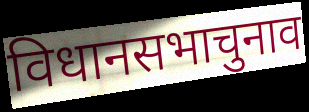
विधानसभाचुनाव